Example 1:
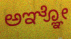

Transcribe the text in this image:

ಅಞ್ಞೋ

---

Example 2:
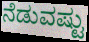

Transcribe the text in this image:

ನೆಡುವಷ್ಟು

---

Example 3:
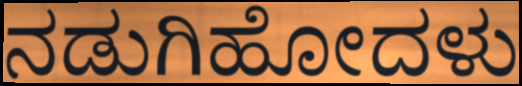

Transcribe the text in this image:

ನಡುಗಿಹೋದಳು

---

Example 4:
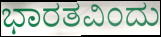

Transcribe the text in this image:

ಭಾರತವಿಂದು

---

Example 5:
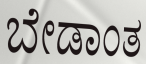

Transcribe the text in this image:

ಬೇಡಾಂತ